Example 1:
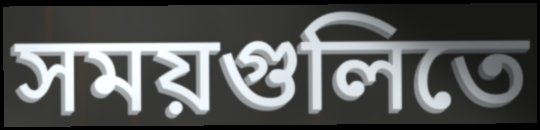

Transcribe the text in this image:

সময়গুলিতে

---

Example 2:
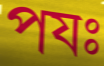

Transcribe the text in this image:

পযঃ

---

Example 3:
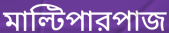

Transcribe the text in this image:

মাল্টিপারপাজ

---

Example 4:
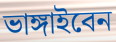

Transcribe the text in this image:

ভাঙ্গাইবেন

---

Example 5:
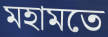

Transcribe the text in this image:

মহামতে